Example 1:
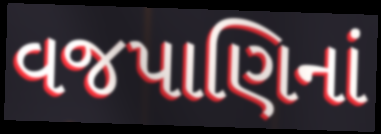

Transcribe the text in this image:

વજપાણિનાં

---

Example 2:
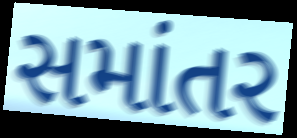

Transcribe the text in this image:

સમાંતર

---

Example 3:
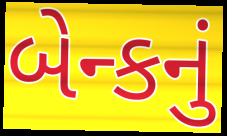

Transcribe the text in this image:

બેન્કનું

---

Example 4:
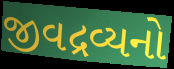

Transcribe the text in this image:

જીવદ્રવ્યનો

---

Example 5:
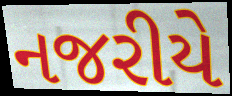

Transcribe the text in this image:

નજરીયે